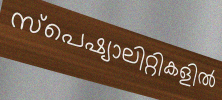
സ്പെഷ്യാലിറ്റികളിൽ